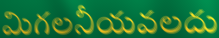
మిగలనీయవలదు